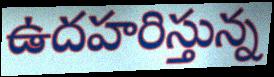
ఉదహరిస్తున్న